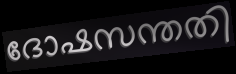
ദോഷസന്തതി